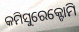
କମିସୁରେକ୍ଟୋମି